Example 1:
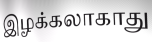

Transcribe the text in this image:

இழக்கலாகாது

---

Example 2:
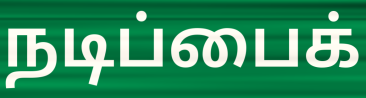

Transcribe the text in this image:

நடிப்பைக்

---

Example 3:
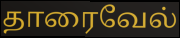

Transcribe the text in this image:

தாரைவேல்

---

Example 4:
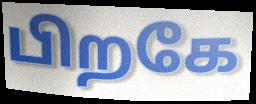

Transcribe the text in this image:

பிறகே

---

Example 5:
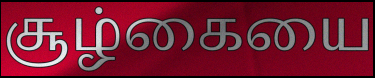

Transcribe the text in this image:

சூழ்கையை